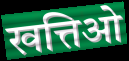
खत्तिओ